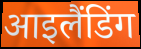
आइलैंडिंग